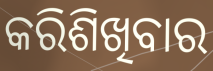
କରିଶିଖିବାର